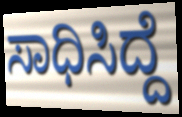
ಸಾಧಿಸಿದ್ದೆ